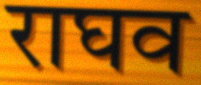
राघव